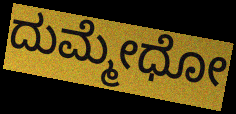
ದುಮ್ಮೇಧೋ